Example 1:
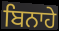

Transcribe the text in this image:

ਬਿਨਾਹੇ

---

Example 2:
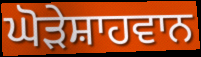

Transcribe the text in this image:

ਘੋੜੇਸ਼ਾਹਵਾਨ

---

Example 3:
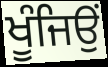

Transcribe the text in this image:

ਖੂੰਜਿਉਂ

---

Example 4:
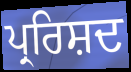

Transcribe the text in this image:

ਪ੍ਰਰਿਸ਼ਦ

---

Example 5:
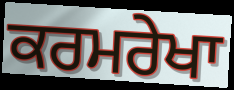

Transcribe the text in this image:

ਕਰਮਰੇਖਾ